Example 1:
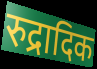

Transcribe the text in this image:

रुद्रादिक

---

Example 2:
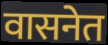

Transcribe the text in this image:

वासनेत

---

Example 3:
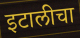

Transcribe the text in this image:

इटालीचा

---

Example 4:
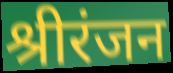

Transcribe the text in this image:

श्रीरंजन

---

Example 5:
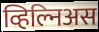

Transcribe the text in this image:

व्हिल्निअस